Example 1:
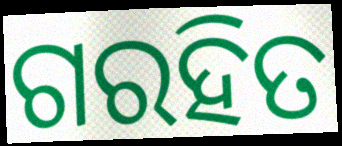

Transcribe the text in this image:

ଗରହିତ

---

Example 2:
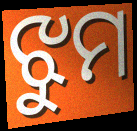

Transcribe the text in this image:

ଝୁମ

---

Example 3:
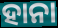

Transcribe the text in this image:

ହାନା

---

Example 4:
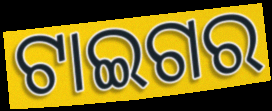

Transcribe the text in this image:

ଟାଇଗର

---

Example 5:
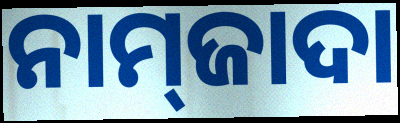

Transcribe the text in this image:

ନାମ୍‌ଜାଦା